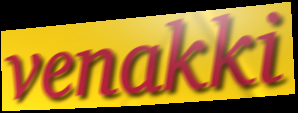
venakki